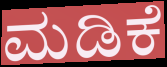
ಮಡಿಕೆ